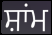
ਸ਼ਾਂਮ